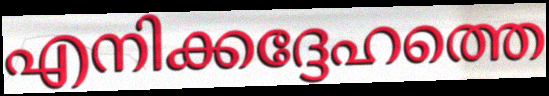
എനിക്കദ്ദേഹത്തെ